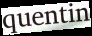
quentin